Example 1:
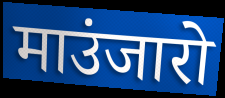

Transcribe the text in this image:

माउंजारो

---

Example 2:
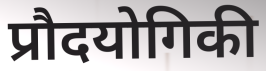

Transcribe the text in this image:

प्रौदयोगिकी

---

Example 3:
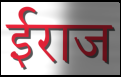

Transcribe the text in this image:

ईराज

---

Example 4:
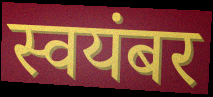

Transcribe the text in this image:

स्वयंबर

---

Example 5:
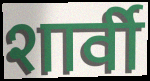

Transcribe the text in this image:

शार्वी